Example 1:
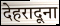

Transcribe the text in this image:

देहरादूना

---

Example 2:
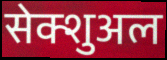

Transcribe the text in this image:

सेक्शुअल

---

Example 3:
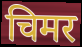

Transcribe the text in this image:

चिमर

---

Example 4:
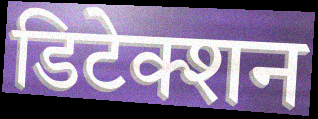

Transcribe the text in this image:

डिटेक्शन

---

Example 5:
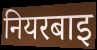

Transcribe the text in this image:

नियरबाइ